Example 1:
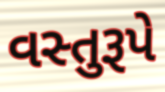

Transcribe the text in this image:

વસ્તુરૂપે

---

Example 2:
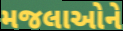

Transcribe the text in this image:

મજલાઓને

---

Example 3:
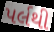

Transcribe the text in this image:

પર્લથી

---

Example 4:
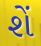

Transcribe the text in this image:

શેં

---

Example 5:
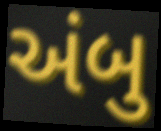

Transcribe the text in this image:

અંબુ